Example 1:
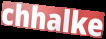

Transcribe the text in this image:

chhalke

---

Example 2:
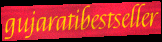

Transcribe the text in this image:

gujaratibestseller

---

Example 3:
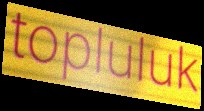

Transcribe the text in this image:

topluluk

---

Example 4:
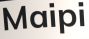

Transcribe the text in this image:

Maipi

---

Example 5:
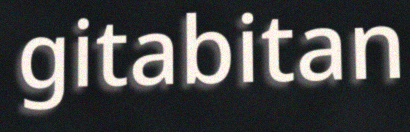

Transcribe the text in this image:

gitabitan